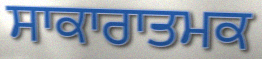
ਸਾਕਾਰਾਤਮਕ